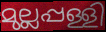
മുല്ലപ്പള്ളി